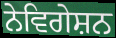
ਨੇਵਿਗੇਸ਼ਨ